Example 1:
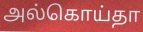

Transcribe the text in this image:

அல்கொய்தா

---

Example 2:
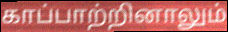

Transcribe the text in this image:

காப்பாற்றினாலும்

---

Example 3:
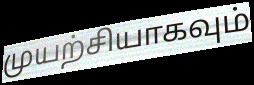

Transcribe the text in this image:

முயற்சியாகவும்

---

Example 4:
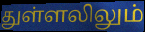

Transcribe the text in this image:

துள்ளலிலும்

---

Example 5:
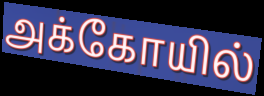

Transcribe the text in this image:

அக்கோயில்